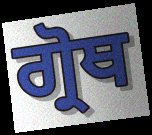
ਗ੍ਰੋਥ